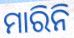
ମାରିନି